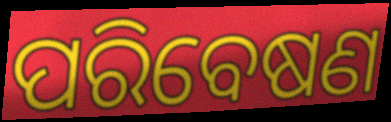
ପରିବେଷଣ